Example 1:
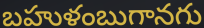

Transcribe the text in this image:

బహుళంబుగానగు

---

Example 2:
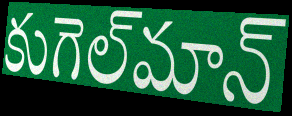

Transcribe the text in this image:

కుగెల్‌మాన్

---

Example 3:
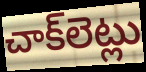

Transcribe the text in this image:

చాక్‌లెట్లు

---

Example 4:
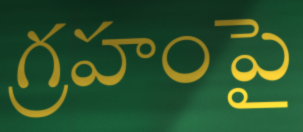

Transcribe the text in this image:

గ్రహంపై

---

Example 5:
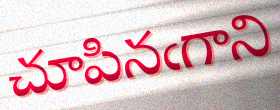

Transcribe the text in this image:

చూపినఁగాని